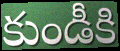
కుండీకి